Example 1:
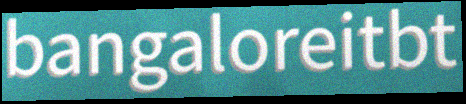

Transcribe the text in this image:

bangaloreitbt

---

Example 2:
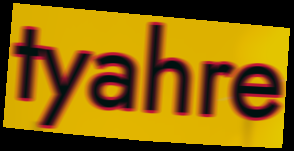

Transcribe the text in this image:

tyahre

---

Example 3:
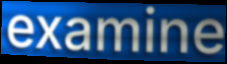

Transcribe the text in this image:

examine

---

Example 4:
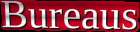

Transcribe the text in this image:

Bureaus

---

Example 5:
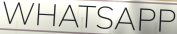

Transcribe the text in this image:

WHATSAPP